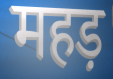
महड़